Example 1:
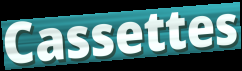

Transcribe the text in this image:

Cassettes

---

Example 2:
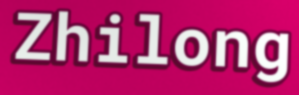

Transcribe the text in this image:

Zhilong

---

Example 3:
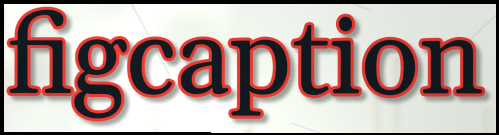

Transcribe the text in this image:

figcaption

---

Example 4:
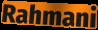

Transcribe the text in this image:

Rahmani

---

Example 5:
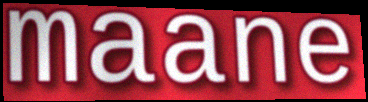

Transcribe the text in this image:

maane